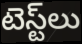
టెస్ట్‌లు